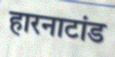
हारनाटांड